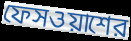
ফেসওয়াশের